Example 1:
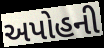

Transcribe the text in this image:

અપોહની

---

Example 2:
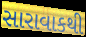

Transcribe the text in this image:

સારાવાકથી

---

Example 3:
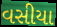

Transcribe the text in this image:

વસીયા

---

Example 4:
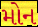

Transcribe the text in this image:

મોન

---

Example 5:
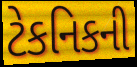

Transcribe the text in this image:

ટેકનિકની